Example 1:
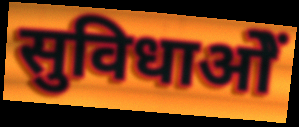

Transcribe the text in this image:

सुविधाओें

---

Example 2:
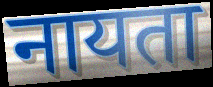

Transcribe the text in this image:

नायता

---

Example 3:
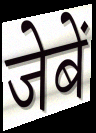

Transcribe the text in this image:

जेबें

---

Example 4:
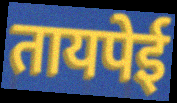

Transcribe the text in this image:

तायपेई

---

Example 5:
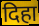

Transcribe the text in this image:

दिहा